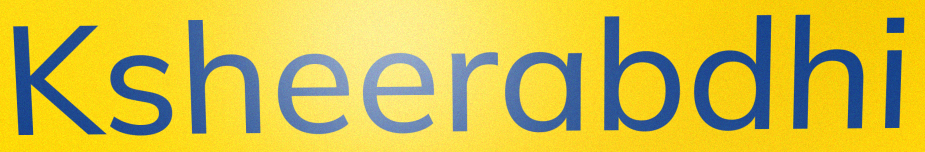
Ksheerabdhi